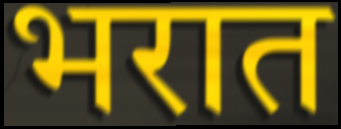
भरात